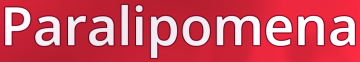
Paralipomena